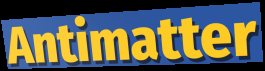
Antimatter